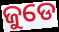
ଜୁଡେ